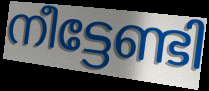
നീട്ടേണ്ടി